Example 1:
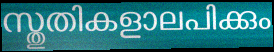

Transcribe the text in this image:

സ്തുതികളാലപിക്കും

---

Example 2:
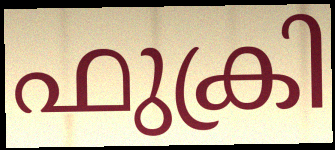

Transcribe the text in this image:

ഫുക്രി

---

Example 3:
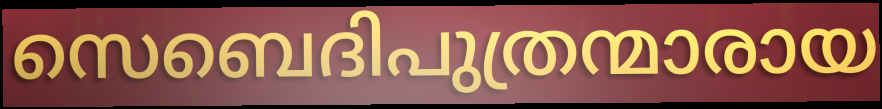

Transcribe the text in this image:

സെബെദിപുത്രന്മാരായ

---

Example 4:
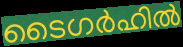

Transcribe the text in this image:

ടൈഗർഹിൽ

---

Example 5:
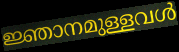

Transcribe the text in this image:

ജ്ഞാനമുള്ളവൾ